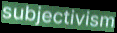
subjectivism